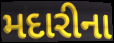
મદારીના